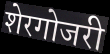
शेरगोजरी